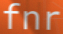
fnr